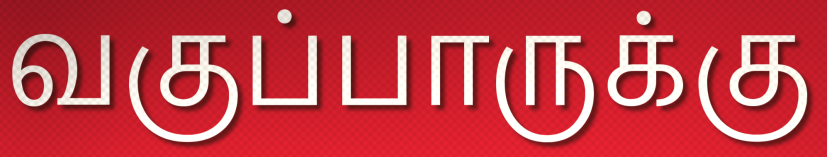
வகுப்பாருக்கு